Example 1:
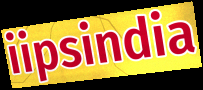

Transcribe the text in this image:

iipsindia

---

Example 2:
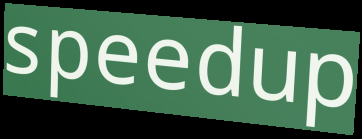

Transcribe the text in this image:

speedup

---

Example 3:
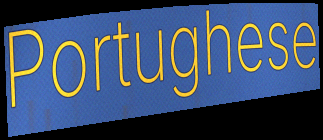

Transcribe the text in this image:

Portughese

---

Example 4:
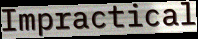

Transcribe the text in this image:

Impractical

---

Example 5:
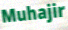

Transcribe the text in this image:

Muhajir